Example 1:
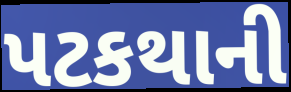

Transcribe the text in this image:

પટકથાની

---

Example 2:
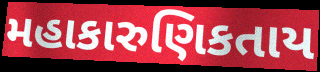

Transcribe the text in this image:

મહાકારુણિકતાય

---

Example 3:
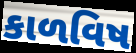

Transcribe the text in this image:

કાળવિષ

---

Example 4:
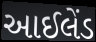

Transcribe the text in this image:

આઈલેંડ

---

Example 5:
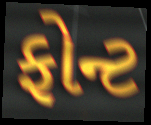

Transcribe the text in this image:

ફોન્ટ